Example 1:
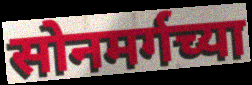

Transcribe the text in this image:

सोनमर्गच्या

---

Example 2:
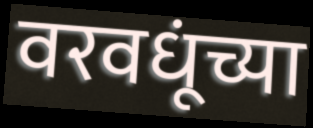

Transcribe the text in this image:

वरवधूंच्या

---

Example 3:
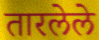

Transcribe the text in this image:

तारलेले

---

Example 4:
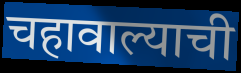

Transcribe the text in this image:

चहावाल्याची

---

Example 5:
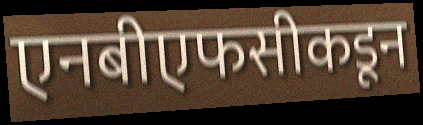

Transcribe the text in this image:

एनबीएफसीकडून